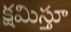
క్షమిస్తూ